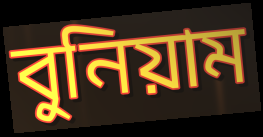
বুনিয়াম